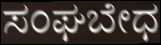
ಸಂಘಬೇಧ